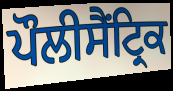
ਪੌਲੀਸੈਂਟ੍ਰਿਕ